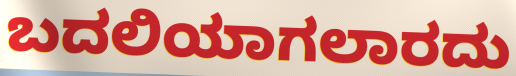
ಬದಲಿಯಾಗಲಾರದು